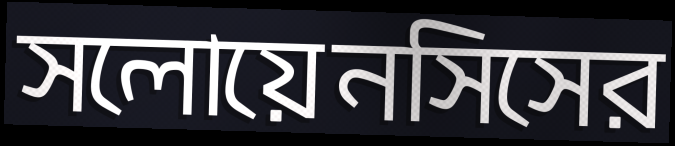
সলোয়েনসিসের